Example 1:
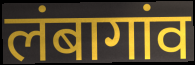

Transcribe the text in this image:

लंबागांव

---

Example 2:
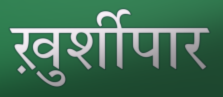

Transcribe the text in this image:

ख़ुर्शीपार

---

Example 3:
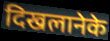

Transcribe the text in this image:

दिखलानेके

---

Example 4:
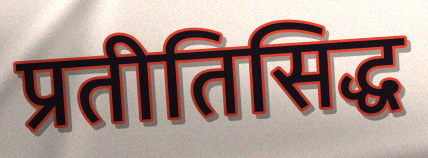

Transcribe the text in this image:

प्रतीतिसिद्ध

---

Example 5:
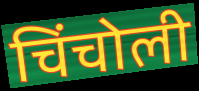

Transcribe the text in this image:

चिंचोली